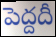
పెద్దదీ